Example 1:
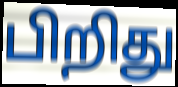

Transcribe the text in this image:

பிறிது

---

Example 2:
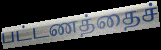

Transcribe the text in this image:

பட்டணத்தைச்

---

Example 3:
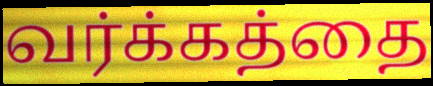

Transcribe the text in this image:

வர்க்கத்தை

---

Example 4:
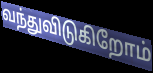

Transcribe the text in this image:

வந்துவிடுகிறோம்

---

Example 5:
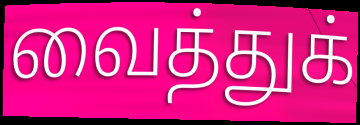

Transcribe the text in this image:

வைத்துக்